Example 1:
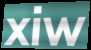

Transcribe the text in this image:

xiw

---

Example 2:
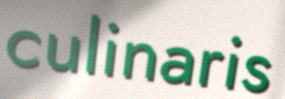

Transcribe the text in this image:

culinaris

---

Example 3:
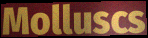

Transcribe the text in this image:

Molluscs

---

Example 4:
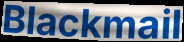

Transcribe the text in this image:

Blackmail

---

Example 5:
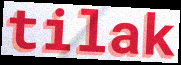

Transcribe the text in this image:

tilak